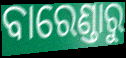
ବାରେଣ୍ଡାରୁ